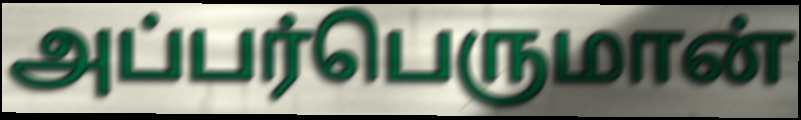
அப்பர்பெருமான்